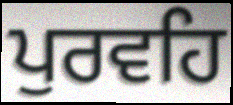
ਪੁਰਵਹਿ